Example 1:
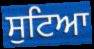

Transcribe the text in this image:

ਸੁਟਿਆ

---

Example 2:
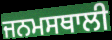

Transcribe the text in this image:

ਜਨਮਸਥਾਲੀ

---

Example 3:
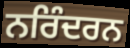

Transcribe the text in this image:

ਨਰਿੰਦਰਨ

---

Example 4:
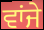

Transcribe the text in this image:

ਵਾਂਜੇ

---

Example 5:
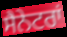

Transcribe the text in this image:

ਸੈਨੇਟਰਾਂ